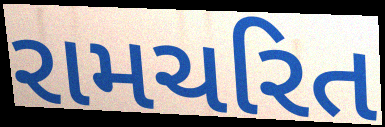
રામચરિત